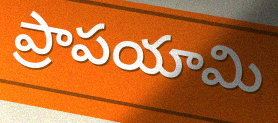
ప్రాపయామి